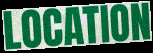
LOCATION